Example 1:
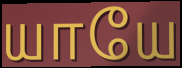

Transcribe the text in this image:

யாயே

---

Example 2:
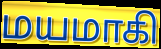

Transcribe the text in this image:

மயமாகி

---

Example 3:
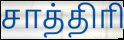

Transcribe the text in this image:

சாத்திரி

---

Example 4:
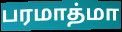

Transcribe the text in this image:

பரமாத்மா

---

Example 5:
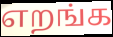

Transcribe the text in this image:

எறங்க